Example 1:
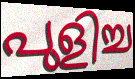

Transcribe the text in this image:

പുളിച്ച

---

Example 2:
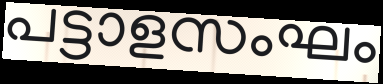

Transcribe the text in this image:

പട്ടാളസംഘം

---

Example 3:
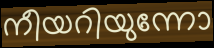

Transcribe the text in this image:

നീയറിയുന്നോ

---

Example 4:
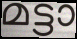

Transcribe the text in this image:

മട്ടാ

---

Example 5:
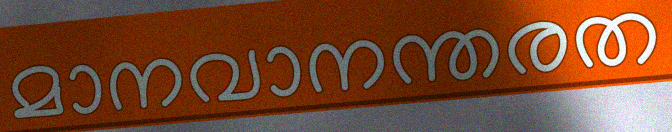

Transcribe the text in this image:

മാനവാനന്തരത